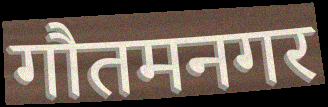
गौतमनगर